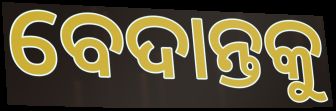
ବେଦାନ୍ତକୁ